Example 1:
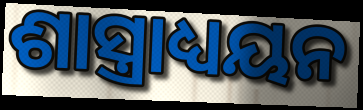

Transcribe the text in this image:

ଶାସ୍ତ୍ରାଧ୍ୟୟନ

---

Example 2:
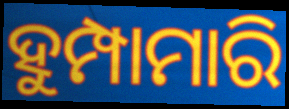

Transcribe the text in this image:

ହୁମ୍ପାମାରି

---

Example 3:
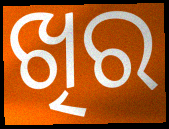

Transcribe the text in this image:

ଖିର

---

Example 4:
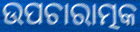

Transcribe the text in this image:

ଉପଚାରାତ୍ମକ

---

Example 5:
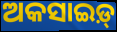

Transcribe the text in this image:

ଅକସାଇଡ଼୍